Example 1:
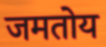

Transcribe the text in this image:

जमतोय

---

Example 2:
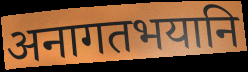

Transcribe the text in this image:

अनागतभयानि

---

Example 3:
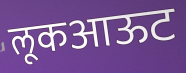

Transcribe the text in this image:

लूकआऊट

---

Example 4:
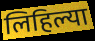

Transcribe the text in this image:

लिहिल्या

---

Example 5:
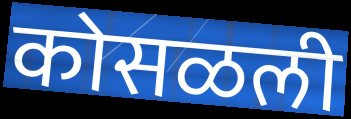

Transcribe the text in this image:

कोसळली